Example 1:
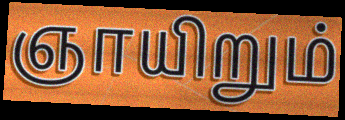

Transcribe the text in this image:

ஞாயிறும்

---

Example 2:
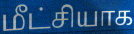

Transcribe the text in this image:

மீட்சியாக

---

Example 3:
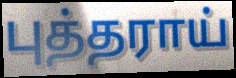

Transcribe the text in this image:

புத்தராய்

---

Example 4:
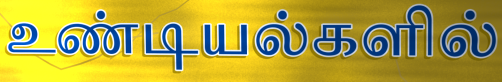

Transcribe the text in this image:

உண்டியல்களில்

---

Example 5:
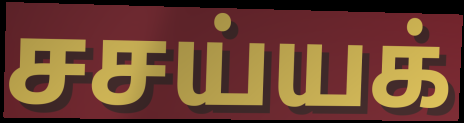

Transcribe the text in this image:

சசய்யக்